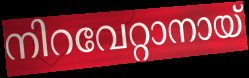
നിറവേറ്റാനായ്